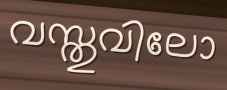
വസ്തുവിലോ